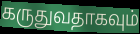
கருதுவதாகவும்